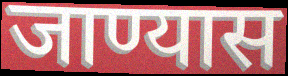
जाण्यास